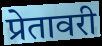
प्रेतावरी